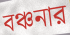
বঞ্চনার